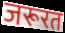
जरूरत